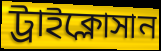
ট্রাইক্লোসান